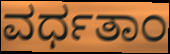
ವರ್ಧತಾಂ